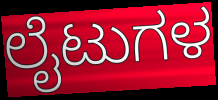
ಲೈಟುಗಳ